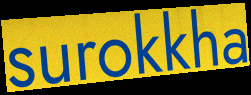
surokkha